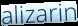
alizarin